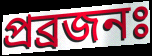
প্ৰব্ৰজনঃ